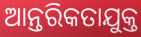
ଆନ୍ତରିକତାଯୁକ୍ତ